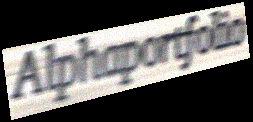
Alphaportfolio